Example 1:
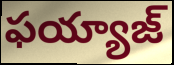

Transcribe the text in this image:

ఫయ్యాజ్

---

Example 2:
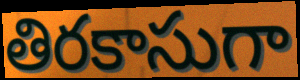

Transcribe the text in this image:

తిరకాసుగా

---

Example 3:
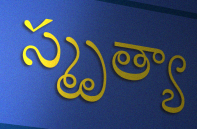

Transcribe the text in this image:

స్మృత్యా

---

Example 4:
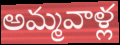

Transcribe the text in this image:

అమ్మవాళ్ల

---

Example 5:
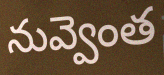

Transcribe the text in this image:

నువ్వెంత